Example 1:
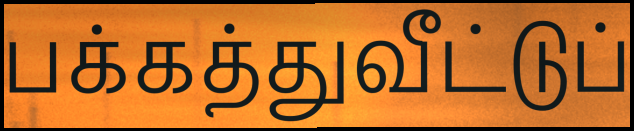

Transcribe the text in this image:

பக்கத்துவீட்டுப்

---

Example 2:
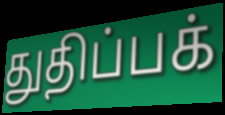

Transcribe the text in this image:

துதிப்பக்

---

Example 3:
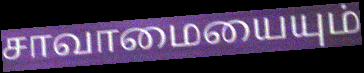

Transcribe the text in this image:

சாவாமையையும்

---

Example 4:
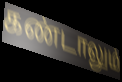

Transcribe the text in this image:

கண்டாலும்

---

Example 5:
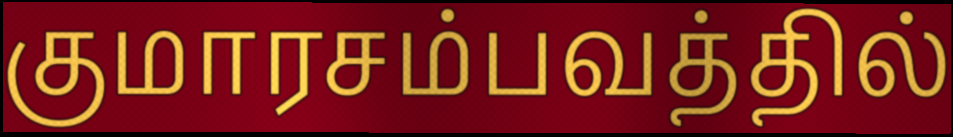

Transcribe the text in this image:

குமாரசம்பவத்தில்